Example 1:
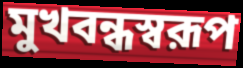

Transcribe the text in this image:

মুখবন্ধস্বরূপ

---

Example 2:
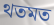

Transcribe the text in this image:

থতমত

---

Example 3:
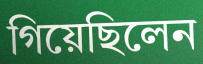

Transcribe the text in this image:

গিয়েছিলেন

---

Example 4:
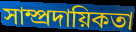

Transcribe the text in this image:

সাম্প্রদায়িকতা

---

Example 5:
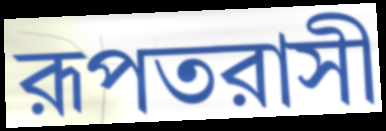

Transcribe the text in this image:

রূপতরাসী